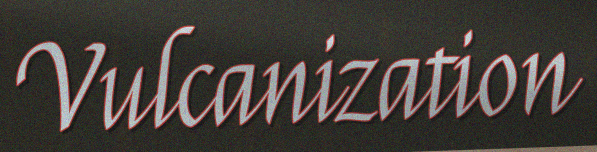
Vulcanization